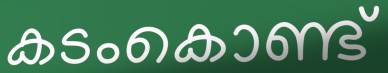
കടംകൊണ്ട്